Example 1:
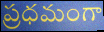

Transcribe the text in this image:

ప్రధమంగా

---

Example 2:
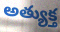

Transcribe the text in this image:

అత్యుక్త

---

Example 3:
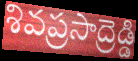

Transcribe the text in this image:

శివప్రసాద్రెడ్డి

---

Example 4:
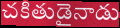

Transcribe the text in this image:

చకితుడైనాడు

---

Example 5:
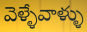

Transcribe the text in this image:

వెళ్ళేవాళ్ళు